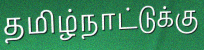
தமிழ்நாட்டுக்கு